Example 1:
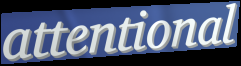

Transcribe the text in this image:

attentional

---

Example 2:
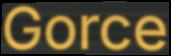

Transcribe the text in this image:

Gorce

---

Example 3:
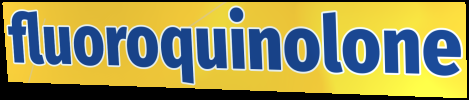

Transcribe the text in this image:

fluoroquinolone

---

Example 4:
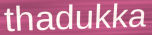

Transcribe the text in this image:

thadukka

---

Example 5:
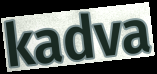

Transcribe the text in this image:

kadva